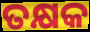
ତକ୍ଷକ